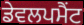
ਡੇਵਲਪਮੈਂਟ